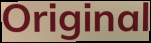
Original